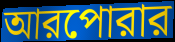
আরপোরার